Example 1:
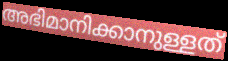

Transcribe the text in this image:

അഭിമാനിക്കാനുള്ളത്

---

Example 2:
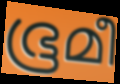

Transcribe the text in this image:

ഭൂമീ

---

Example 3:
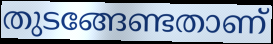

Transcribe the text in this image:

തുടങ്ങേണ്ടതാണ്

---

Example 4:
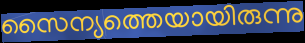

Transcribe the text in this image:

സൈന്യത്തെയായിരുന്നു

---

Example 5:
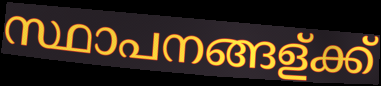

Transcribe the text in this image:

സ്ഥാപനങ്ങള്ക്ക്